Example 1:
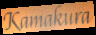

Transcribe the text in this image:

Kamakura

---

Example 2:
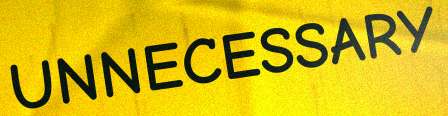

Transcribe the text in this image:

UNNECESSARY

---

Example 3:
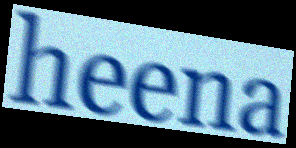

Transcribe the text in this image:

heena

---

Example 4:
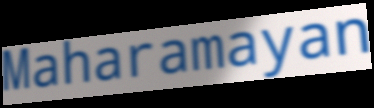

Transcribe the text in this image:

Maharamayan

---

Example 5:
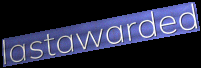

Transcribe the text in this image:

lastawarded